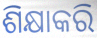
ଶିକ୍ଷାକରି